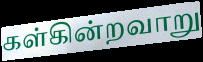
கள்கின்றவாறு